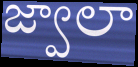
జ్వాలా